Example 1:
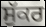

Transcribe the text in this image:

ਸੁੱਕਰ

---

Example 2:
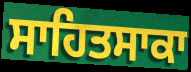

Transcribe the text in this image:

ਸਾਹਿਤਸਾਕਾ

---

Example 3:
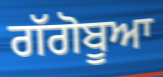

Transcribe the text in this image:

ਗੱਗੋਬੂਆ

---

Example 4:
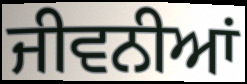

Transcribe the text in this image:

ਜੀਵਨੀਆਂ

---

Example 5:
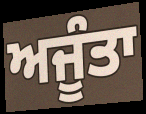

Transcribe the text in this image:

ਅਜੂੰਤਾ